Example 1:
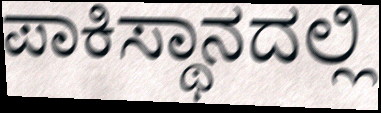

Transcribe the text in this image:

ಪಾಕಿಸ್ಥಾನದಲ್ಲಿ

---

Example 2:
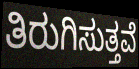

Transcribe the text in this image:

ತಿರುಗಿಸುತ್ತವೆ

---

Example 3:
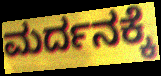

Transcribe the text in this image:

ಮರ್ದನಕ್ಕೆ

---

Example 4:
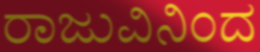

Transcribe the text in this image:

ರಾಜುವಿನಿಂದ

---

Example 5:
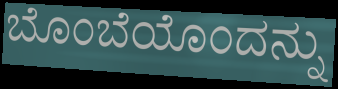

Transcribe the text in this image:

ಬೊಂಬೆಯೊಂದನ್ನು